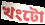
খংটো